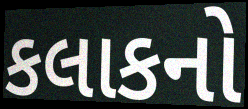
કલાકનો